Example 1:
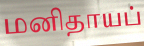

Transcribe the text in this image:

மனிதாயப்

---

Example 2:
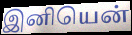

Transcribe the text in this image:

இனியென்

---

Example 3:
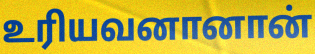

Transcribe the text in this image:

உரியவனானான்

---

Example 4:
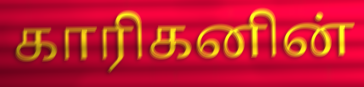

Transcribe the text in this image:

காரிகனின்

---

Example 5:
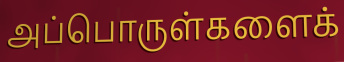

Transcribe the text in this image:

அப்பொருள்களைக்